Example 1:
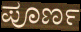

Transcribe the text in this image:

ಪೂರ್ಣ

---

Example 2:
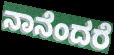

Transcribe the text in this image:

ನಾನೆಂದರೆ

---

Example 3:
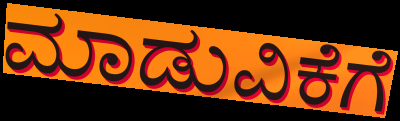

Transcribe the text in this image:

ಮಾಡುವಿಕೆಗೆ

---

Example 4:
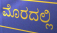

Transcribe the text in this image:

ಮೊರದಲ್ಲಿ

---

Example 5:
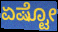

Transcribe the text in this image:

ಏಷ್ಟೋ